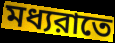
মধ্যরাতে